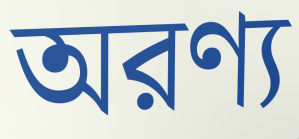
অরণ্য